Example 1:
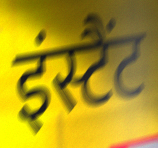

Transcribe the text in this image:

इंस्टैंट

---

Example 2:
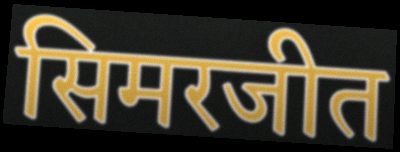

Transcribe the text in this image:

सिमरजीत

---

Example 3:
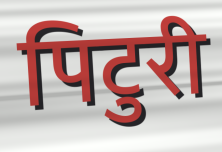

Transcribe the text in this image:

पिटुरी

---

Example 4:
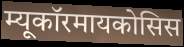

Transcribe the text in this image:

म्यूकॉरमायकोसिस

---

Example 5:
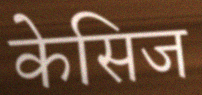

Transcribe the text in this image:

केसिज